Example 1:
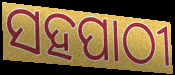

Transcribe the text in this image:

ସହପାଠୀ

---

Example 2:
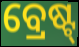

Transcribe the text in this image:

ବ୍ରେଷ୍ଟ୍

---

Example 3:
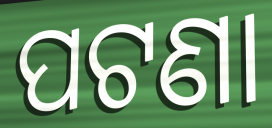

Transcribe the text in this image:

ପଟଣା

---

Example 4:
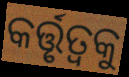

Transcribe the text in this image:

କର୍ତ୍ତୃତ୍ୱକୁ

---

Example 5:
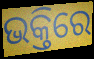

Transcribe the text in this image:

ଭକ୍ତିରେ